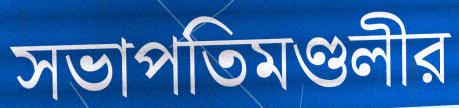
সভাপতিমণ্ডলীর